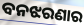
ବନଝରଣାର